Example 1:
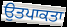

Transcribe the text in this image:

ਉਤਪਾਕਤਾ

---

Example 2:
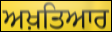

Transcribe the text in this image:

ਅਖ਼ਤਿਆਰ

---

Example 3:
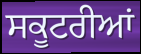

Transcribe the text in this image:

ਸਕੂਟਰੀਆਂ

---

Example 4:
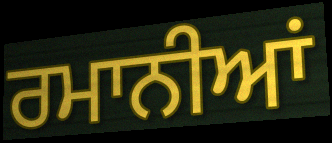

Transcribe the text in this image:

ਰਮਾਨੀਆਂ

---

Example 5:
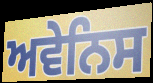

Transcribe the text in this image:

ਅਵੇਨਿਸ